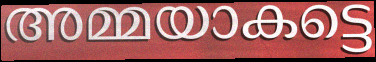
അമ്മയാകട്ടെ